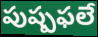
పుష్పఫలే